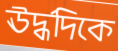
ঊর্দ্ধদিকে